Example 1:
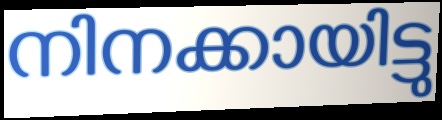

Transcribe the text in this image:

നിനക്കായിട്ടു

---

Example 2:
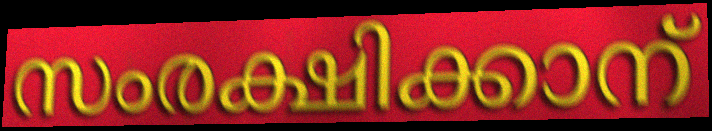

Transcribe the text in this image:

സംരക്ഷിക്കാന്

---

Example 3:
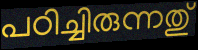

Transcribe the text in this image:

പഠിച്ചിരുന്നതു്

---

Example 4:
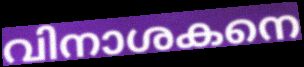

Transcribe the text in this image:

വിനാശകനെ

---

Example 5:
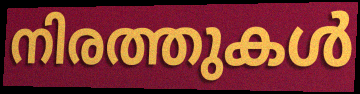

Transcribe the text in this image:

നിരത്തുകൾ